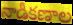
నాడీకణాల